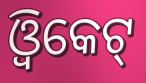
ଓ୍ଵିକେଟ୍